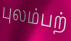
புலம்பற்